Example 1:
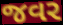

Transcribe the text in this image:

જવર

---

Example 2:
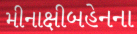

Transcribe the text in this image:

મીનાક્ષીબહેનના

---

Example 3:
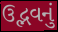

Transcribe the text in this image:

ઉદ્ભવનું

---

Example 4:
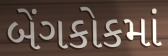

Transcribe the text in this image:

બેંગકોકમાં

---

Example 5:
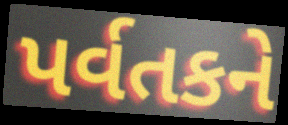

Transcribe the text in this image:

પર્વતકને